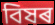
বিষৰ